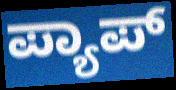
ಪ್ಯಾಪ್